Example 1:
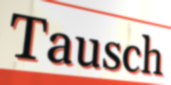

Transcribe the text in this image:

Tausch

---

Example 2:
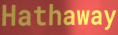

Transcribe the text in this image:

Hathaway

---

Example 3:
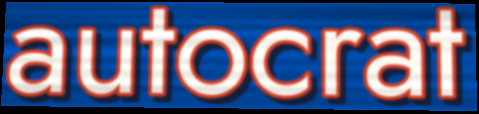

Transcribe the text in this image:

autocrat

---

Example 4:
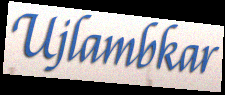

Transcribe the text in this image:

Ujlambkar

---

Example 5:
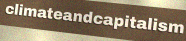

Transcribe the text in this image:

climateandcapitalism